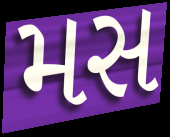
મસ